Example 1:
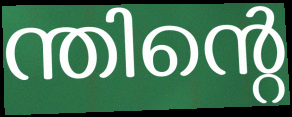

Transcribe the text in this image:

ന്തിന്റെ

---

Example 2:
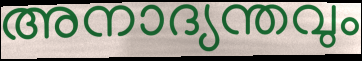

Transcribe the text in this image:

അനാദ്യന്തവും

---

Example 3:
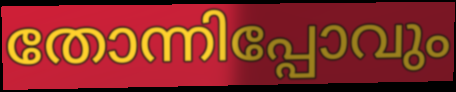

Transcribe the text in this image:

തോന്നിപ്പോവും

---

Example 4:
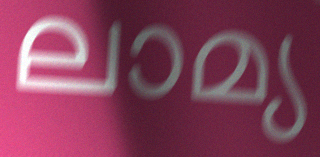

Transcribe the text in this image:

ലാമ്യ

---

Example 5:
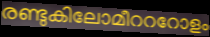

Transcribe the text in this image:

രണ്ടുകിലോമീറററോളം